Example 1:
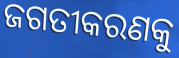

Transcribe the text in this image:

ଜଗତୀକରଣକୁ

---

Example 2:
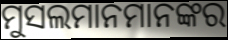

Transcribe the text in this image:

ମୁସଲମାନମାନଙ୍କର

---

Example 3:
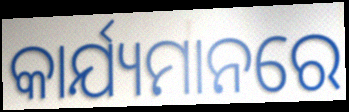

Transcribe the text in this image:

କାର୍ଯ୍ୟମାନରେ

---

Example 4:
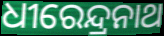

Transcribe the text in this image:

ଧୀରେନ୍ଦ୍ରନାଥ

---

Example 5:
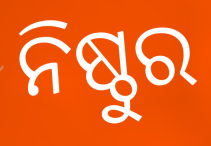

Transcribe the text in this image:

ନିଷ୍ଠୁର